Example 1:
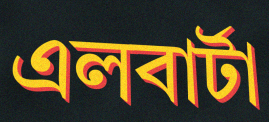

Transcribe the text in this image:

এলবার্টা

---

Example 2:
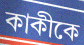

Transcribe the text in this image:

কাকীকে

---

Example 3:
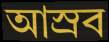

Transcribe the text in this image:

আস্রব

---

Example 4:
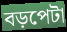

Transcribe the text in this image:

বড়পেটা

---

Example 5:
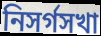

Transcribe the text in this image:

নিসর্গসখা